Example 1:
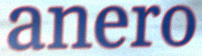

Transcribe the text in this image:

anero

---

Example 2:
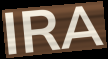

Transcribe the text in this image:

IRA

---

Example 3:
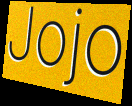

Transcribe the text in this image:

Jojo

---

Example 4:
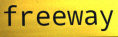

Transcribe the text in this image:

freeway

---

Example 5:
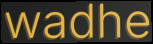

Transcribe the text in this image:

wadhe